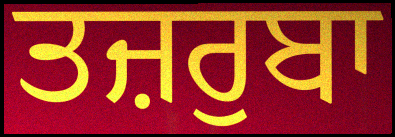
ਤਜ਼ਰੁਬਾ